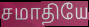
சமாதியே